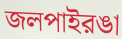
জলপাইরঙা